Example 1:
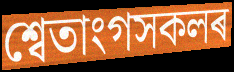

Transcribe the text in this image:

শ্বেতাংগসকলৰ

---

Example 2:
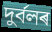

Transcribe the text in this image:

দুৰ্বলৰ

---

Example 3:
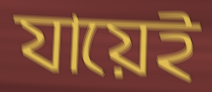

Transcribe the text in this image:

যায়েই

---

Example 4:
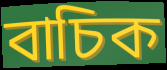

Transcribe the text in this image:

বাচিক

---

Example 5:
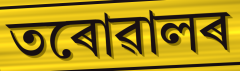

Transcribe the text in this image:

তৰোৱালৰ